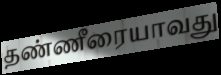
தண்ணீரையாவது